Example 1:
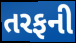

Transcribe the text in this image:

તરફની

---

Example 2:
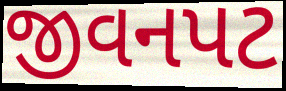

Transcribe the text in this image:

જીવનપટ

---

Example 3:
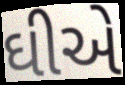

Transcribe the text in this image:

ઘીએ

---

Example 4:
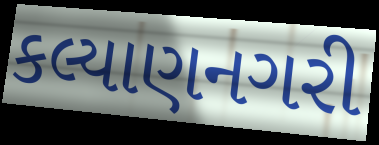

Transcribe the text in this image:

કલ્યાણનગરી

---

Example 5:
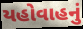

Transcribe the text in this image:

યહોવાહનું